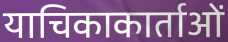
याचिकाकार्ताओं